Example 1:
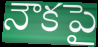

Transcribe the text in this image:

నౌకపై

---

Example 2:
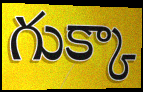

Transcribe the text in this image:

గుక్కా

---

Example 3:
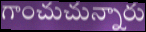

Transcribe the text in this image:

గాంచుచున్నారు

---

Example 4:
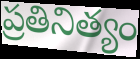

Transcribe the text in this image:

ప్రతినిత్యం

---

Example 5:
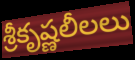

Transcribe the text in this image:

శ్రీకృష్ణలీలలు